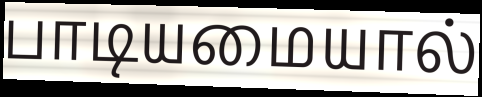
பாடியமையால்